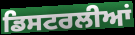
ਡਿਸਟਰਲੀਆਂ